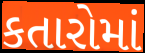
કતારોમાં